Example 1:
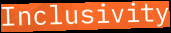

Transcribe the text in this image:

Inclusivity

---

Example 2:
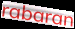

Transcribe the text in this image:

rabaran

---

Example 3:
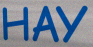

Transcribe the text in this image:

HAY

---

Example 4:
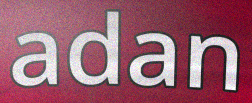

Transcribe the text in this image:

adan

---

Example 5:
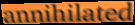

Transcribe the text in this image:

annihilated